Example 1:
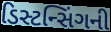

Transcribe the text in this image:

ડિસ્ટન્સિંગની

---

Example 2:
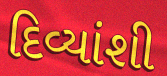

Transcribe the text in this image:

દિવ્યાંશી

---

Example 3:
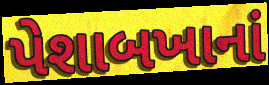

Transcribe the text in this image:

પેશાબખાનાં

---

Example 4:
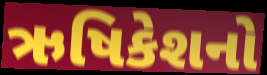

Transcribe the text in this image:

ઋષિકેશનો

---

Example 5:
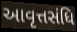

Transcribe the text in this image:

આવૃત્તસંધિ